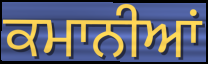
ਕਮਾਨੀਆਂ